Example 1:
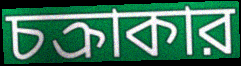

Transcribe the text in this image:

চক্রাকার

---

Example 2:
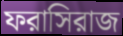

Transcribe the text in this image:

ফরাসিরাজ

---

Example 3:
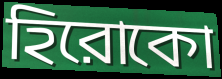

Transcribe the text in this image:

হিরোকো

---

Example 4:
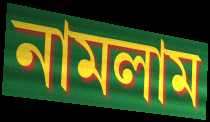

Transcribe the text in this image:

নামলাম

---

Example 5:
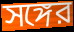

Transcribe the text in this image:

সঙ্গের